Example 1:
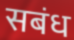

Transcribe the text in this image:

सबंध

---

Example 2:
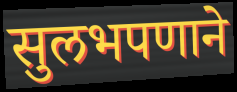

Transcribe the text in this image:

सुलभपणाने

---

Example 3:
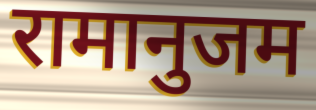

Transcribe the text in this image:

रामानुजम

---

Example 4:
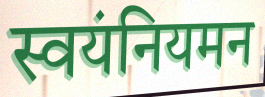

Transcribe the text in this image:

स्वयंनियमन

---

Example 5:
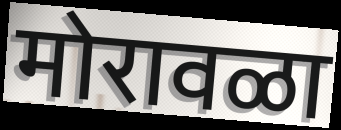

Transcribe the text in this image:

मोरावळा